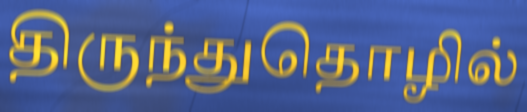
திருந்துதொழில்